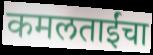
कमलताईंचा